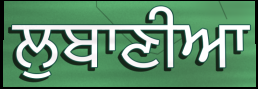
ਲੁਬਾਣੀਆ